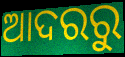
ଆଦରରୁ